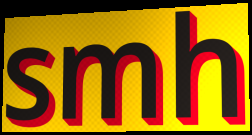
smh